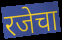
रजेचा